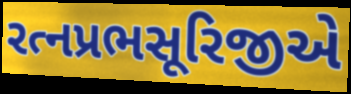
રત્નપ્રભસૂરિજીએ